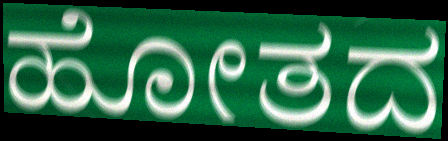
ಹೋತದ